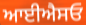
ਆਈਐਸਓ